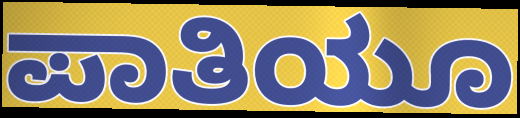
ಪಾತಿಯೂ